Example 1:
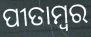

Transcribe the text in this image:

ପୀତାମ୍ବର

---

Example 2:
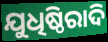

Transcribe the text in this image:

ଯୁଧିଷ୍ଠିରାଦି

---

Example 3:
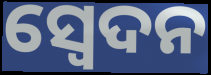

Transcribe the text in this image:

ସ୍ଵେଦନ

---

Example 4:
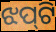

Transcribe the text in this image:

ଝପ୍‌ଟି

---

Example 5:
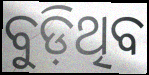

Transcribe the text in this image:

ବୁଡ଼ିଥିବ